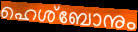
ഹെശ്ബോനും